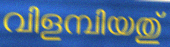
വിളമ്പിയതു്